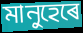
মানুহেৰে